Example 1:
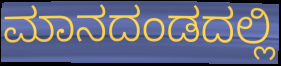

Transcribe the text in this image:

ಮಾನದಂಡದಲ್ಲಿ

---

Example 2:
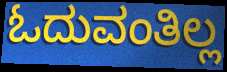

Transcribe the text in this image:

ಓದುವಂತಿಲ್ಲ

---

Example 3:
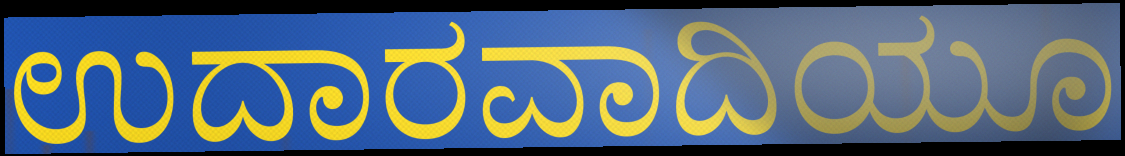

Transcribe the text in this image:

ಉದಾರವಾದಿಯೂ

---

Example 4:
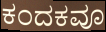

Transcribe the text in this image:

ಕಂದಕವೂ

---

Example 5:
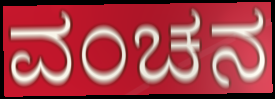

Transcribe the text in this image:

ವಂಚನ